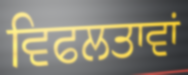
ਵਿਫਲਤਾਵਾਂ